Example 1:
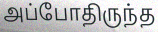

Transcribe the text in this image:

அப்போதிருந்த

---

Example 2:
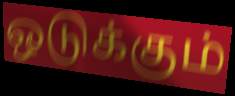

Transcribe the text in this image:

ஒடுக்கும்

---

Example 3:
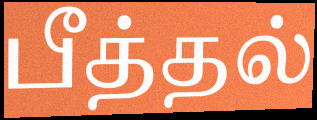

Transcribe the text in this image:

பீத்தல்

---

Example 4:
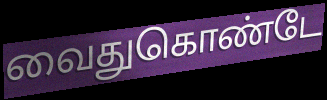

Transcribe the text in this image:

வைதுகொண்டே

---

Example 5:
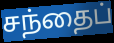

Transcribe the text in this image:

சந்தைப்